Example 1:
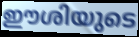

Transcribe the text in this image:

ഈശിയുടെ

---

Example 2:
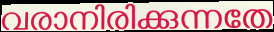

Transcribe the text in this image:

വരാനിരിക്കുന്നതേ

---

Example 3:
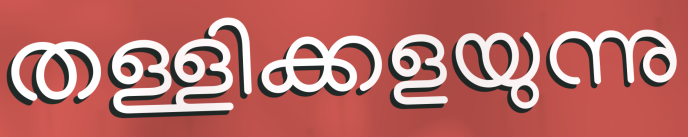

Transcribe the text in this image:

തള്ളിക്കളയുന്നു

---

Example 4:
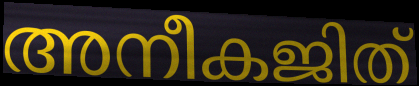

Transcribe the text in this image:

അനീകജിത്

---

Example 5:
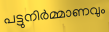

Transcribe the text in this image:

പട്ടുനിർമ്മാണവും